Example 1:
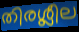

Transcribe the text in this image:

തിരശ്ലീല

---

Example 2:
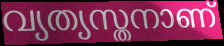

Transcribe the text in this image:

വ്യത്യസ്തനാണ്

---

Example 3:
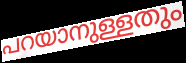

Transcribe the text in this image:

പറയാനുള്ളതും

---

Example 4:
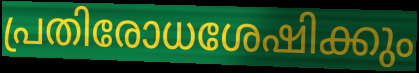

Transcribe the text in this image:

പ്രതിരോധശേഷിക്കും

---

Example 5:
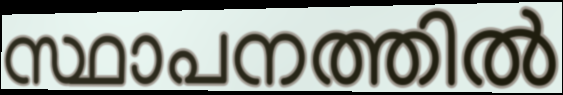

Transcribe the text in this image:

സ്ഥാപനത്തിൽ